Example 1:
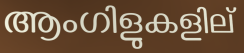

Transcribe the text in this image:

ആംഗിളുകളില്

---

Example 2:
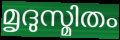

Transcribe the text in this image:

മൃദുസ്മിതം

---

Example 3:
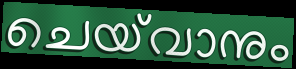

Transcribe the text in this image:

ചെയ്‌വാനും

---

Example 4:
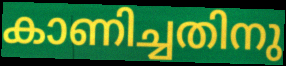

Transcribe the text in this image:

കാണിച്ചതിനു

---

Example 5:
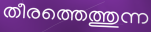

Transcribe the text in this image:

തീരത്തെത്തുന്ന